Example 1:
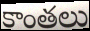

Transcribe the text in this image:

కాంతలు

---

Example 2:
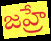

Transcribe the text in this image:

జహ్రే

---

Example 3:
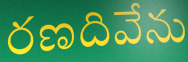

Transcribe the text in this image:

రణదివేను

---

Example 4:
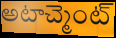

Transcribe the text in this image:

అటాచ్మెంట్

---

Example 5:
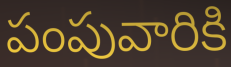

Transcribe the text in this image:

పంపువారికి